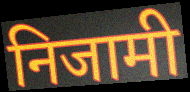
निजामी